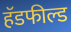
हॅडफील्ड